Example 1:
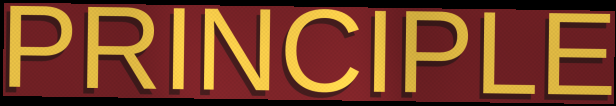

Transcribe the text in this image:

PRINCIPLE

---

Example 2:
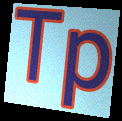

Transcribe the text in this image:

Tp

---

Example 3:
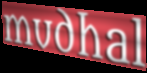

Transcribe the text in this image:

mudhal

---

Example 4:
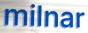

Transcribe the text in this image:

milnar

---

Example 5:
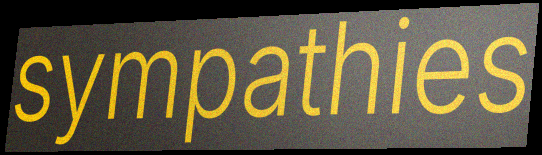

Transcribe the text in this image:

sympathies